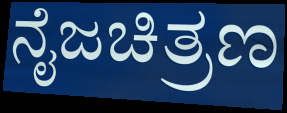
ನೈಜಚಿತ್ರಣ